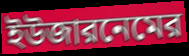
ইউজারনেমের